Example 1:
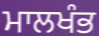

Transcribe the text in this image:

ਮਾਲਖੰਭ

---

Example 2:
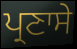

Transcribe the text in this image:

ਪ੍ਰਣਾਸੇ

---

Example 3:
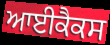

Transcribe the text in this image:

ਆਈਕੈਕਸ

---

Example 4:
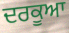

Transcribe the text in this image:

ਦਰਕੂਆ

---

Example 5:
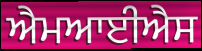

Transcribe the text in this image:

ਐਮਆਈਐਸ